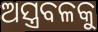
ଅସ୍ତ୍ରବଳକୁ